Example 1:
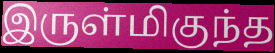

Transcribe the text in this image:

இருள்மிகுந்த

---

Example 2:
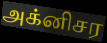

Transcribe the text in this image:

அக்னிசர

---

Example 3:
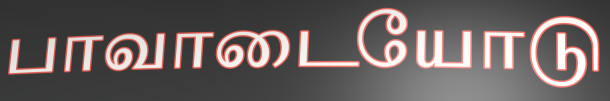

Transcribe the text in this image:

பாவாடையோடு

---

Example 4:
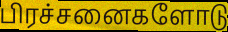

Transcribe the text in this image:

பிரச்சனைகளோடு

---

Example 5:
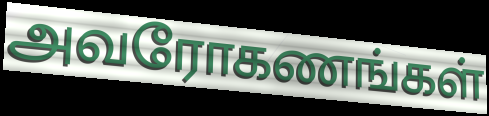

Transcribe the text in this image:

அவரோகணங்கள்